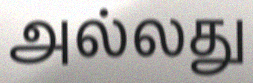
அல்லது